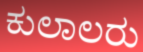
ಕುಲಾಲರು